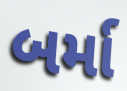
બર્મા